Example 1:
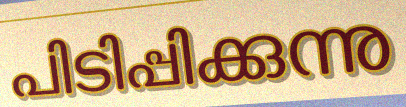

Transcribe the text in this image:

പിടിപ്പിക്കുന്നു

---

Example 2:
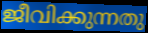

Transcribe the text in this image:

ജീവിക്കുന്നതു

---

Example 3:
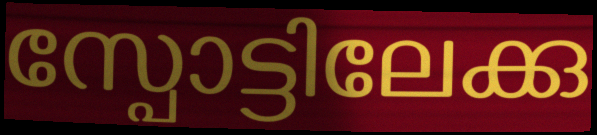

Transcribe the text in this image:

സ്പോട്ടിലേക്കു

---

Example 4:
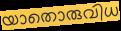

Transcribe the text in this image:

യാതൊരുവിധ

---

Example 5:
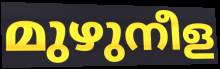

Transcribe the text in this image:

മുഴുനീള